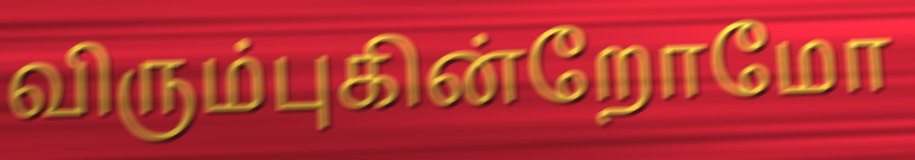
விரும்புகின்றோமோ